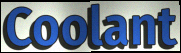
Coolant